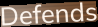
Defends